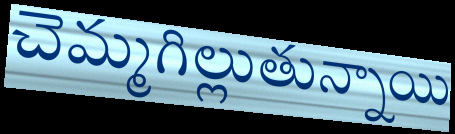
చెమ్మగిల్లుతున్నాయి